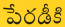
పేరడీకి